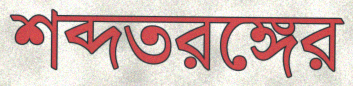
শব্দতরঙ্গের